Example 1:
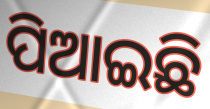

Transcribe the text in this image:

ପିଆଇଛି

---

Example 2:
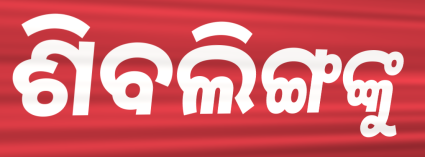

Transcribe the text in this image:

ଶିବଲିଙ୍ଗଙ୍କୁ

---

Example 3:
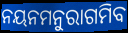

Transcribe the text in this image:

ନୟନମନୁରାଗମିବ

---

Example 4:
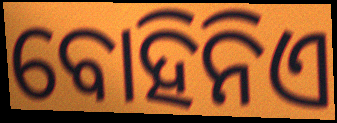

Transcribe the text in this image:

ବୋହିନିଏ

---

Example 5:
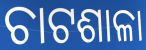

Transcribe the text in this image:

ଚାଟଶାଳା